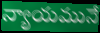
న్యాయమునే